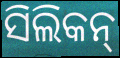
ସିଲିକନ୍